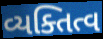
વ્યક્તિત્વ